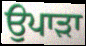
ਉਪਾੜਾ